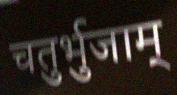
चतुर्भुजाम्